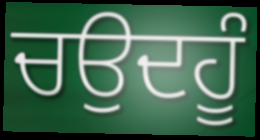
ਚਉਦਹੂੰ